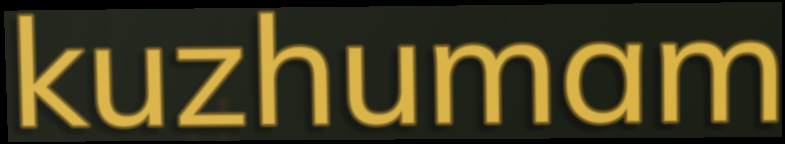
kuzhumam